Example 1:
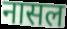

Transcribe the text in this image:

नासल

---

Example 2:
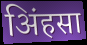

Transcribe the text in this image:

अिंहसा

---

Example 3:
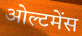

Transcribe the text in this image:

ओल्टमेंस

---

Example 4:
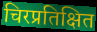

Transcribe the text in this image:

चिरप्रतिक्षित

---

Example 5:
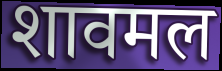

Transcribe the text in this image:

शावमल